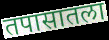
तपासातला